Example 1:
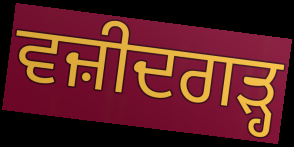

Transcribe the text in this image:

ਵਜ਼ੀਦਗੜ੍ਹ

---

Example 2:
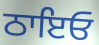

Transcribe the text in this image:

ਠਾਇਓ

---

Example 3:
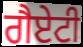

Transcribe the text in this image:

ਗੈਏਟੀ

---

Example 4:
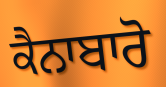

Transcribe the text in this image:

ਕੈਨਾਬਾਰੋ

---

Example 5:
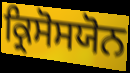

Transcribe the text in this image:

ਕ੍ਰਿਸੋਸਯੋਨ